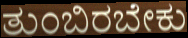
ತುಂಬಿರಬೇಕು